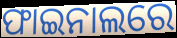
ଫାଇନାଲରେ